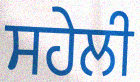
ਸਹੇਲੀ